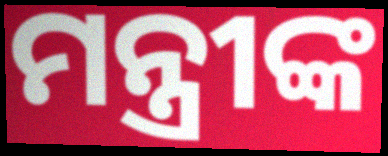
ମନ୍ତ୍ରୀଙ୍କ